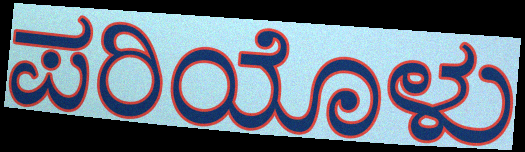
ಪರಿಯೊಳು